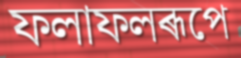
ফলাফলৰূপে